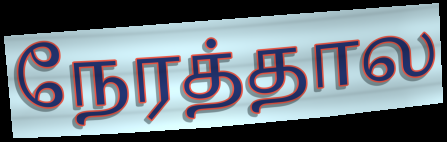
நேரத்தால